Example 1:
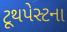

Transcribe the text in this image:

ટૂથપેસ્ટના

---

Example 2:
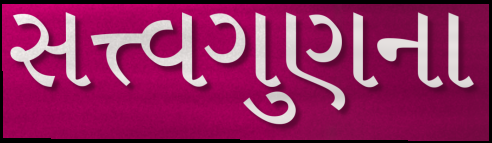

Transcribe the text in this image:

સત્ત્વગુણના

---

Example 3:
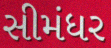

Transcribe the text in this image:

સીમંધર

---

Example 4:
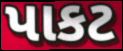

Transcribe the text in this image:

પાકટ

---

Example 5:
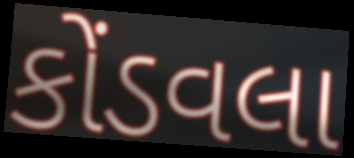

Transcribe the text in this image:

કોંડવલા